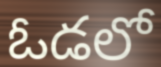
ఓడలో